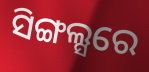
ସିଙ୍ଗଲ୍ସରେ